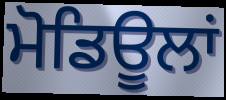
ਮੋਡਿਊਲਾਂ